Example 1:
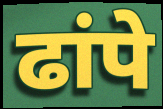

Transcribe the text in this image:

ढांपे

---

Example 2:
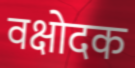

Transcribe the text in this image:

वक्षोदक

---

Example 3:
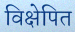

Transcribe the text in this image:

विक्षेपित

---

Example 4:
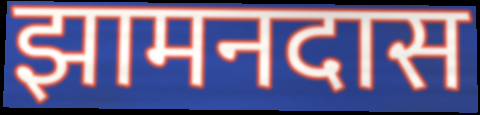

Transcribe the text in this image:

झामनदास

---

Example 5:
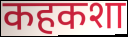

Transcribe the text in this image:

कहकशा